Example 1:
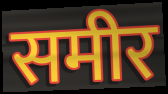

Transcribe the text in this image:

समीर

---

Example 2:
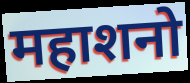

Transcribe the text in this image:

महाशनो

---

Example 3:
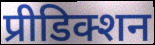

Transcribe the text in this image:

प्रीडिक्शन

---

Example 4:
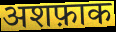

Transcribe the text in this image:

अशफ़ाक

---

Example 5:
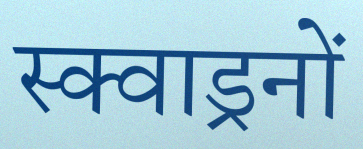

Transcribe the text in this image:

स्क्वाड्रनों